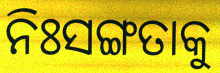
ନିଃସଙ୍ଗତାକୁ